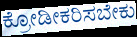
ಕ್ರೋಡೀಕರಿಸಬೇಕು